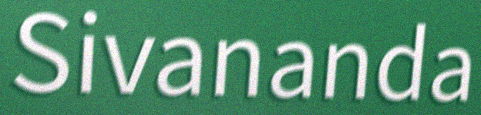
Sivananda